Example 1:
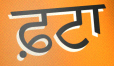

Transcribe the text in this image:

ਫ਼ਟਾ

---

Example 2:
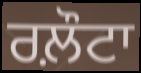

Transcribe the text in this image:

ਰਲ਼ੌਟਾ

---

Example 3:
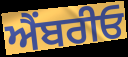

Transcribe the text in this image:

ਐੰਬਰੀਓ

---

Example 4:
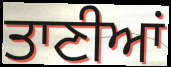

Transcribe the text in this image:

ਤਾਣੀਆਂ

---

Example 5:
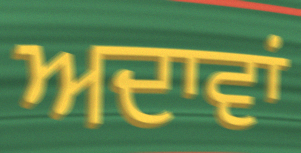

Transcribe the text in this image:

ਅਦਾਵਾਂ